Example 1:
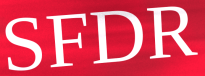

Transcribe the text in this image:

SFDR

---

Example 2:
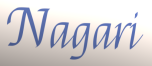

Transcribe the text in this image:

Nagari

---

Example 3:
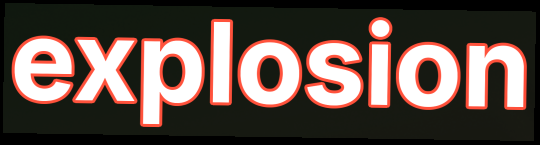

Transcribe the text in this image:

explosion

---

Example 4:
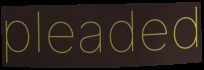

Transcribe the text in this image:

pleaded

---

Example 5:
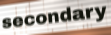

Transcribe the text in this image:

secondary